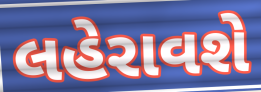
લહેરાવશે